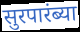
सुरपारंब्या